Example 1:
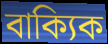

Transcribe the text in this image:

বাক্যিক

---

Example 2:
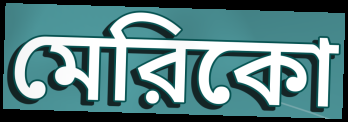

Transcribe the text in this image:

মেরিকো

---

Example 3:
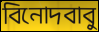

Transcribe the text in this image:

বিনোদবাবু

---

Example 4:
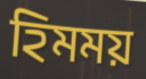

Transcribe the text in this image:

হিমময়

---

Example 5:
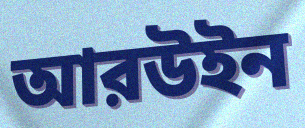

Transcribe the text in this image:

আরউইন